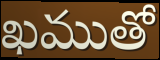
ఖముతో